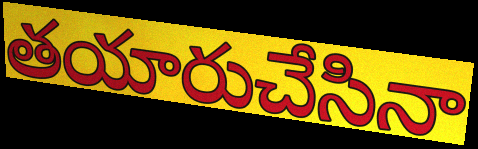
తయారుచేసినా